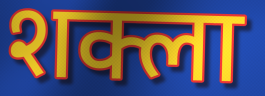
शक्ला